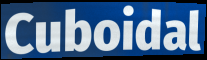
Cuboidal